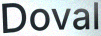
Doval